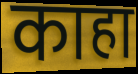
काहा